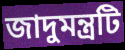
জাদুমন্ত্রটি